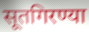
सूतगिरण्या